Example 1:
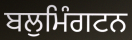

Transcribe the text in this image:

ਬਲੁਮਿੰਗਟਨ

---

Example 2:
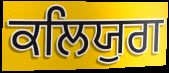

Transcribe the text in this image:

ਕਲਿਯੁਗ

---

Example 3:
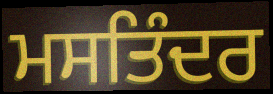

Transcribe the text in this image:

ਮਸਤਿੰਦਰ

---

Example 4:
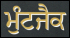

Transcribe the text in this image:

ਮੁੰਟਜੈਕ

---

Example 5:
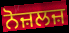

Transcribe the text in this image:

ਨੋਜ਼ਲਜ਼